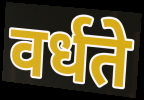
वर्धते